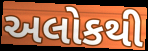
અલોકથી